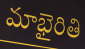
మాభైరితి